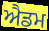
ਐਡਮ